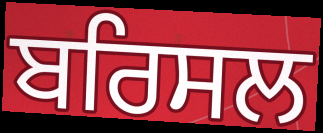
ਬਰਿਸਲ